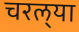
चरल्या